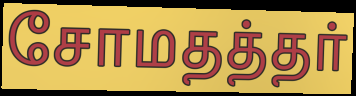
சோமதத்தர்